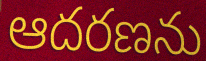
ఆదరణను